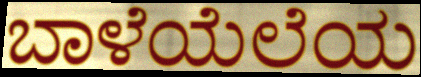
ಬಾಳೆಯೆಲೆಯ